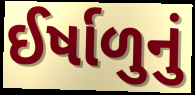
ઈર્ષાળુનું